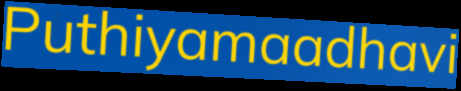
Puthiyamaadhavi